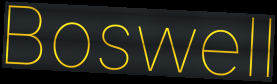
Boswell